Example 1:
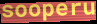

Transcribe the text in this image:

sooperu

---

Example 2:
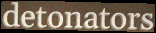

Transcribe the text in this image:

detonators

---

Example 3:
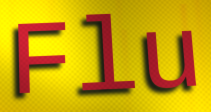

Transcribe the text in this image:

Flu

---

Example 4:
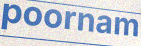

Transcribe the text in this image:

poornam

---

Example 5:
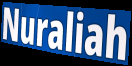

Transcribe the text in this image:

Nuraliah